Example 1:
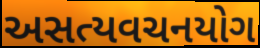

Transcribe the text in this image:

અસત્યવચનયોગ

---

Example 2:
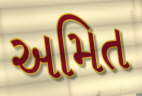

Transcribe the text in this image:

અમિત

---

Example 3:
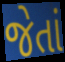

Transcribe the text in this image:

જેતાં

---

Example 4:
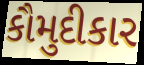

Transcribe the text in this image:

કૌમુદીકાર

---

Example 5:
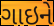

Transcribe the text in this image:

ગાઇને